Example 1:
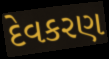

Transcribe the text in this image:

દેવકરણ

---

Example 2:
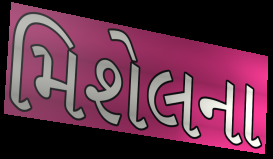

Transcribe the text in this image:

મિશેલના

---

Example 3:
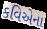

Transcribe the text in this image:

કવિએના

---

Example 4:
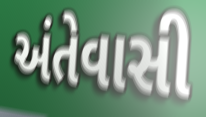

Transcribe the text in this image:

અંતેવાસી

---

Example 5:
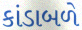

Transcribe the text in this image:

કાંડાબળે